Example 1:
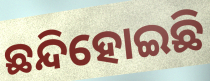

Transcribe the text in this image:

ଛନ୍ଦିହୋଇଛି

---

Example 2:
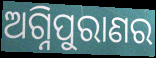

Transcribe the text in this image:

ଅଗ୍ନିପୁରାଣର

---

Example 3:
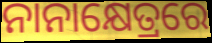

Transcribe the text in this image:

ନାନାକ୍ଷେତ୍ରରେ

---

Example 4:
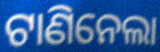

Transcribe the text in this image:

ଟାଣିନେଲା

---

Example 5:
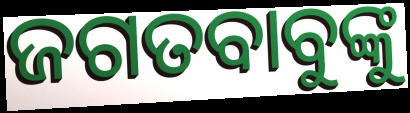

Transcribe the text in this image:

ଜଗତବାବୁଙ୍କୁ